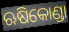
ଋଷିକୋଣ୍ଡା